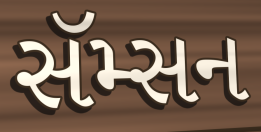
સૅમ્સન